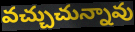
వచ్చుచున్నావు